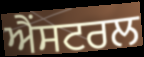
ਐਂਸਟਰਲ